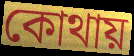
কোথায়